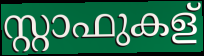
സ്റ്റാഫുകള്